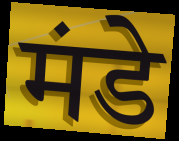
मंडे